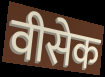
वीसेक